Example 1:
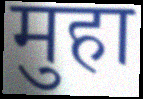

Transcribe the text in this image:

मुहा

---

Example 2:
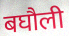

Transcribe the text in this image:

बघौली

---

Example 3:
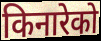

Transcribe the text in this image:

किनारेको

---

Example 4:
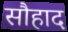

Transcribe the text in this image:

सौहाद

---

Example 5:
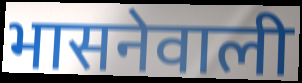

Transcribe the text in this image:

भासनेवाली